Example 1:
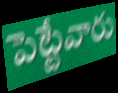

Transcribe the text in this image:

పెట్టేవారు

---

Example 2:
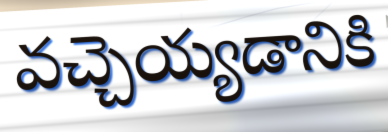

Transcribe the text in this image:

వచ్చెయ్యడానికి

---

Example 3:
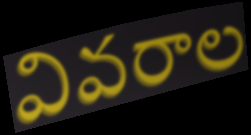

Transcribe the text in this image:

వివరాల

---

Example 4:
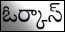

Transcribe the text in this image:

ఓర్కాస్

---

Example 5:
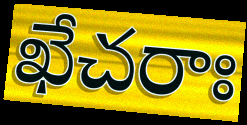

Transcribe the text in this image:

ఖేచరాః